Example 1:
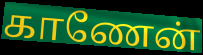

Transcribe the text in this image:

காணேன்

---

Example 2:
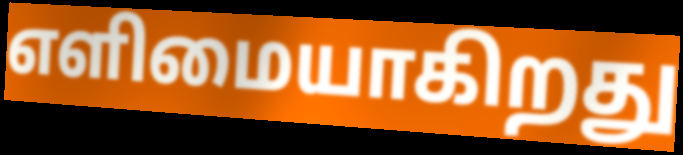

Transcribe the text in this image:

எளிமையாகிறது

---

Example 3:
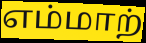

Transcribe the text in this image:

எம்மாற்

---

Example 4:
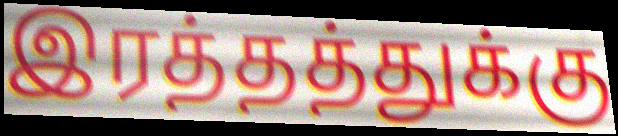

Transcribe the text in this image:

இரத்தத்துக்கு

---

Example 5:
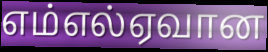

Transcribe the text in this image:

எம்எல்ஏவான